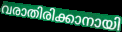
വരാതിരിക്കാനായി